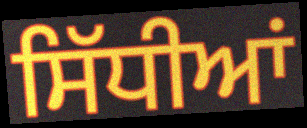
ਸਿੱਧੀਆਂ